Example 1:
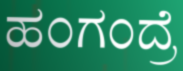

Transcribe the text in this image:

ಹಂಗಂದ್ರೆ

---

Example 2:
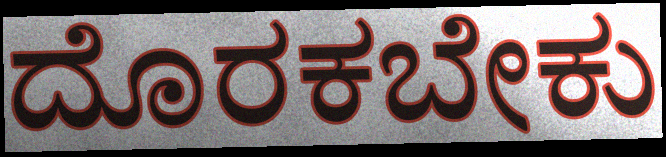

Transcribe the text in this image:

ದೊರಕಬೇಕು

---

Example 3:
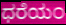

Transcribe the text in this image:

ಧರೆಯಂ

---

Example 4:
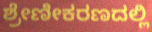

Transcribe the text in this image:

ಶ್ರೇಣೀಕರಣದಲ್ಲಿ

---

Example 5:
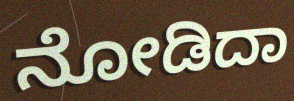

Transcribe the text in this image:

ನೋಡಿದಾ